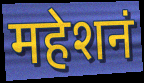
महेशनं